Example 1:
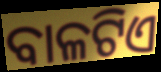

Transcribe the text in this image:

ବାଳଟିଏ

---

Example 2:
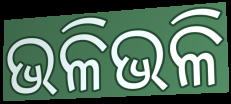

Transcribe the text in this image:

ଭଳିଭଳି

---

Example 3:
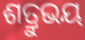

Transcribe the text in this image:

ଶତ୍ରୁଭୟ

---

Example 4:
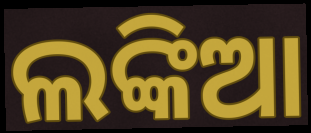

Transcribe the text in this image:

ଲଙ୍କିଆ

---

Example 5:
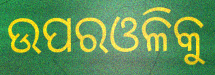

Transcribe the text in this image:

ଉପରଓଳିକୁ